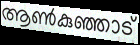
ആൺകുഞ്ഞാട്